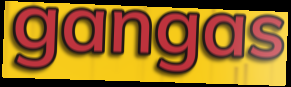
gangas